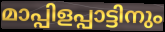
മാപ്പിളപ്പാട്ടിനും